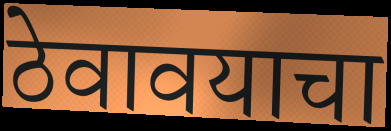
ठेवावयाचा